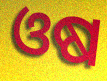
ଓଷ